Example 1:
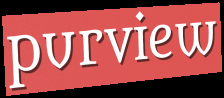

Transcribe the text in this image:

purview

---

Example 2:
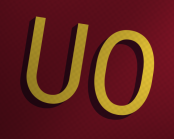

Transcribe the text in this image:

UO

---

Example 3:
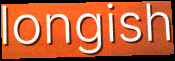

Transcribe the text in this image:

longish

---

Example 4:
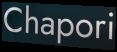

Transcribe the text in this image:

Chapori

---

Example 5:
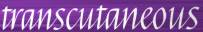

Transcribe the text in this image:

transcutaneous